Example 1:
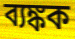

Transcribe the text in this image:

ব্যঙ্কক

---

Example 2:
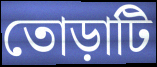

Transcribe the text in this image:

তোড়াটি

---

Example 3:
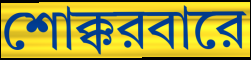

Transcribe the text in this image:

শোক্করবারে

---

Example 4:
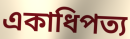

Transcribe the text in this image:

একাধিপত্য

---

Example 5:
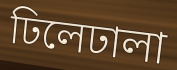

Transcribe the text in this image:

ঢিলেঢালা